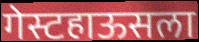
गेस्टहाऊसला